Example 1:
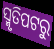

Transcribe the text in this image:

ସ୍ମୃତିପଟରୁ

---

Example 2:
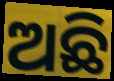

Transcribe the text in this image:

ଅଛି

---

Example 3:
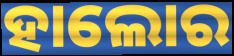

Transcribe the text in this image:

ହାଲୋର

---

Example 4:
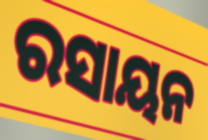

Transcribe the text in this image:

ରସାୟନ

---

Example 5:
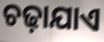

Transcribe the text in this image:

ଚଢ଼ାଯାଏ